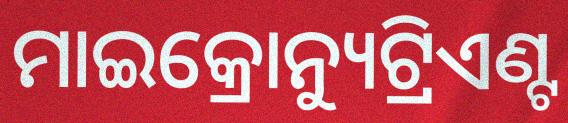
ମାଇକ୍ରୋନ୍ୟୁଟ୍ରିଏଣ୍ଟ